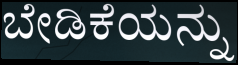
ಬೇಡಿಕೆಯನ್ನು